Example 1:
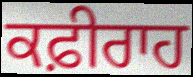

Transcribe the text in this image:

ਕਫ਼ੀਰਾਹ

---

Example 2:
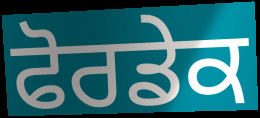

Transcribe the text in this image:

ਫੋਰਡੇਕ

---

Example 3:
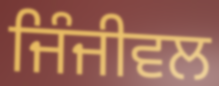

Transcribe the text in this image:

ਜਿੰਜੀਵਲ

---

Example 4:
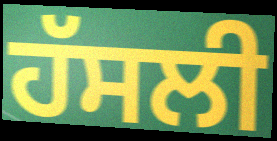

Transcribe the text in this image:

ਹੱਸਲੀ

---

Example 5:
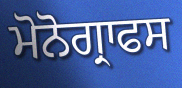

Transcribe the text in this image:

ਮੋਨੋਗ੍ਰਾਫਸ